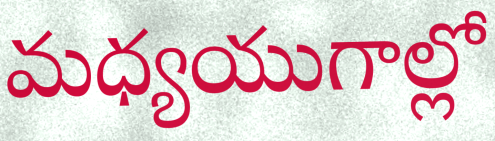
మధ్యయుగాల్లో